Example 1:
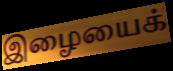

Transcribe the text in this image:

இழையைக்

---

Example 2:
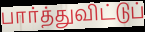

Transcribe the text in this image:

பார்த்துவிட்டுப்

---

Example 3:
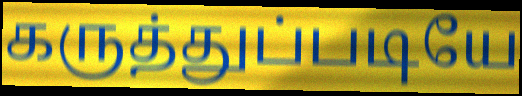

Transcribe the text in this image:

கருத்துப்படியே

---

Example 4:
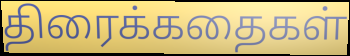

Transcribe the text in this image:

திரைக்கதைகள்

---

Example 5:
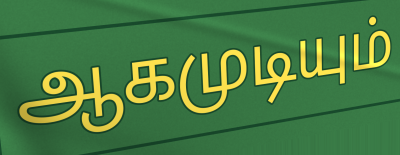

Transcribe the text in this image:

ஆகமுடியும்